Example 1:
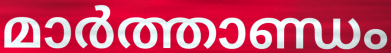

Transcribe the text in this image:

മാർത്താണ്ഡം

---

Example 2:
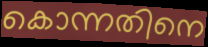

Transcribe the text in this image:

കൊന്നതിനെ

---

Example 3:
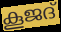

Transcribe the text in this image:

കൂജദ്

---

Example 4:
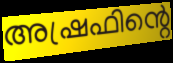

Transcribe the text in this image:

അഷ്രഫിന്റെ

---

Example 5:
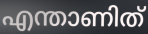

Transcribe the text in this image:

എന്താണിത്